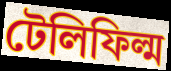
টেলিফিল্ম